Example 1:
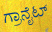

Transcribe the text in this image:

ಗ್ರಾನೈಟ್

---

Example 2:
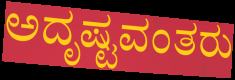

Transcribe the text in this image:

ಅದೃಷ್ಟವಂತರು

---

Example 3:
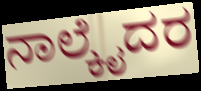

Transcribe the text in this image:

ನಾಲ್ಕೈದರ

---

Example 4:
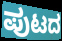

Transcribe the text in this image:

ಪುಟದ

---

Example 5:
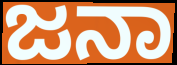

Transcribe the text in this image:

ಜನಾ